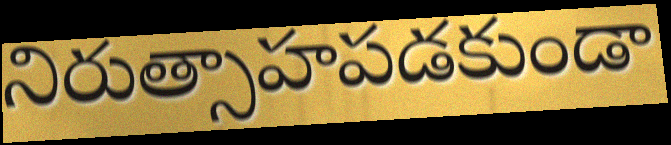
నిరుత్సాహపడకుండా